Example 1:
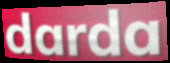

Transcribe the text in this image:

darda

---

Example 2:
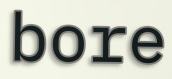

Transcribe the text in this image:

bore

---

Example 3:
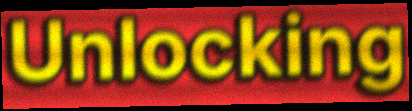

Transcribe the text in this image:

Unlocking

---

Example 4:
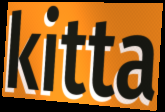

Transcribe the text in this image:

kitta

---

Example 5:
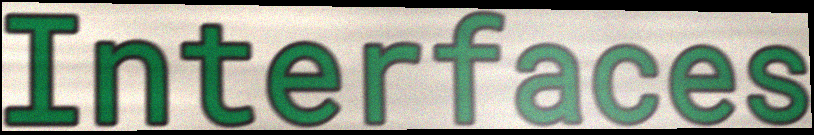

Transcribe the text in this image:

Interfaces